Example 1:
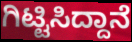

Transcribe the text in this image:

ಗಿಟ್ಟಿಸಿದ್ದಾನೆ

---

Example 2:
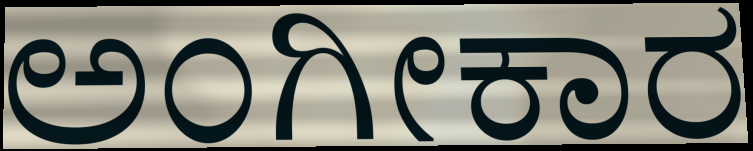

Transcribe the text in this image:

ಅಂಗೀಕಾರ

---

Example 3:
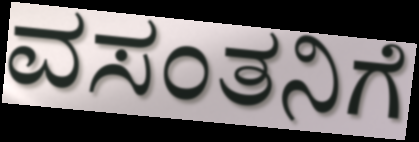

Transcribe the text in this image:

ವಸಂತನಿಗೆ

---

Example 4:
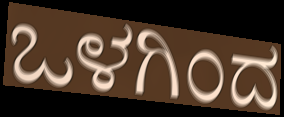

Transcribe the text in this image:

ಒಳಗಿಂದ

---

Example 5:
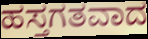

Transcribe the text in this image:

ಹಸ್ತಗತವಾದ